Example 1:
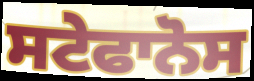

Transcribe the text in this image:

ਸਟੇਫਾਨੋਸ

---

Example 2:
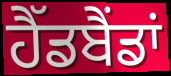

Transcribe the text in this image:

ਹੈੱਡਬੈਂਡਾਂ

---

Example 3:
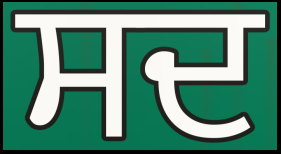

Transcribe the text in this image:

ਸਦ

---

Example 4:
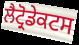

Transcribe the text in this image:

ਲੈਟ੍ਰੋਡੇਕਟਸ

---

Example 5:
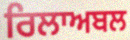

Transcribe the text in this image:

ਰਿਲਾਅਬਲ